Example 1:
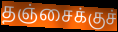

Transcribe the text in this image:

தஞ்சைக்குச்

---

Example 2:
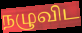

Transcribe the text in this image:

நழுவிட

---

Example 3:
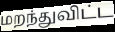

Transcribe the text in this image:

மறந்துவிட்ட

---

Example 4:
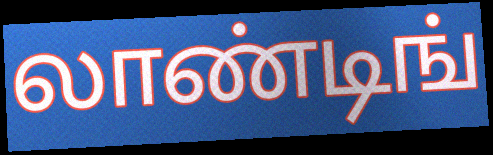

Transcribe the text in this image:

லாண்டிங்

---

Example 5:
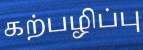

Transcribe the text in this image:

கற்பழிப்பு